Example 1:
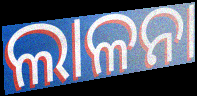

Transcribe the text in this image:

ଲାଳନା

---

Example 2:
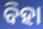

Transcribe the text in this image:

ବିହା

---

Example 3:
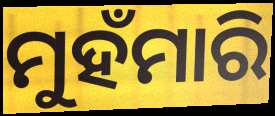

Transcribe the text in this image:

ମୁହଁମାରି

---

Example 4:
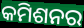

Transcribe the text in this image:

କମିଶନର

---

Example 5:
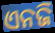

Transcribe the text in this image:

ଏନଜି